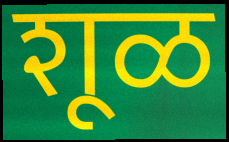
शूळ